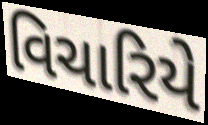
વિચારિયે